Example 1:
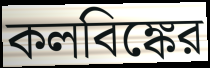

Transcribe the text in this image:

কলবিঙ্কের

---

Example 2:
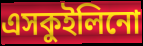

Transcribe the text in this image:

এসকুইলিনো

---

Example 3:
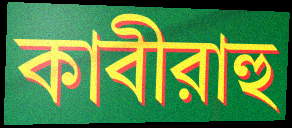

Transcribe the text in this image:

কাবীরাহু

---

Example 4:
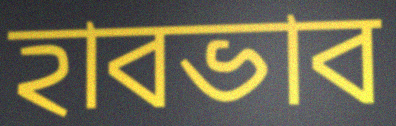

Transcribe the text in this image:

হাবভাব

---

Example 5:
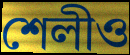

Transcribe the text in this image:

শেলীও